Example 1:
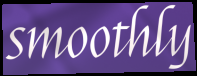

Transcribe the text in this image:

smoothly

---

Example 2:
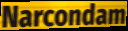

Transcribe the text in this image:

Narcondam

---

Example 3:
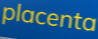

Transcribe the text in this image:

placenta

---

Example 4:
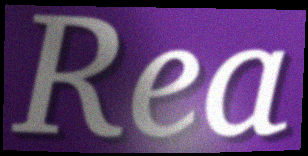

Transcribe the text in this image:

Rea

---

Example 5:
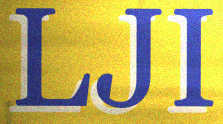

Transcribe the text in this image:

LJI